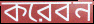
করেবন